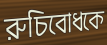
রুচিবোধকে